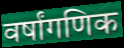
वर्षांगणिक